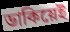
ডাকিয়েই